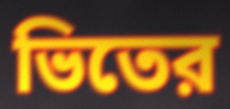
ভিতের